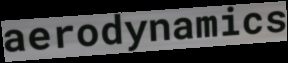
aerodynamics